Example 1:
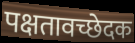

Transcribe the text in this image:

पक्षतावच्छेदक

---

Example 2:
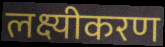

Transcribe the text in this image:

लक्ष्यीकरण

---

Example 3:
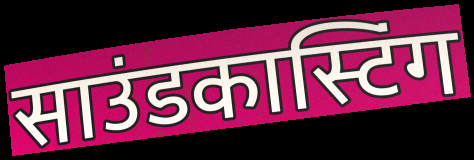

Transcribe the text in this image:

साउंडकास्टिंग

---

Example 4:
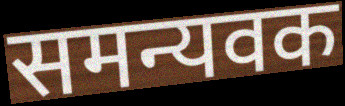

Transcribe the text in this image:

समन्यवक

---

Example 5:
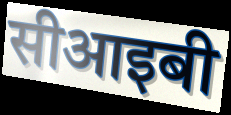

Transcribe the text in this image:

सीआइबी